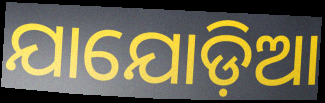
ଯାଯୋଡ଼ିଆ